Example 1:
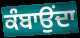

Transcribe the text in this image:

ਕੰਬਾਉਂਦਾ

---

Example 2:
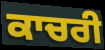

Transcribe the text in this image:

ਕਾਚਰੀ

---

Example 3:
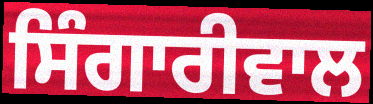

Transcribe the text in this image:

ਸਿੰਗਾਰੀਵਾਲ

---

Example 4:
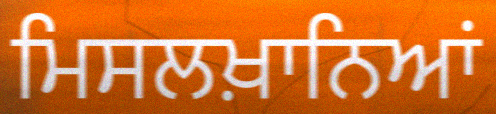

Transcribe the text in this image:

ਮਿਸਲਖ਼ਾਨਿਆਂ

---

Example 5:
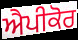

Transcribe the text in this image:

ਐਪੀਕੋਰ